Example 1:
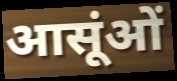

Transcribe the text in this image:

आसूंओं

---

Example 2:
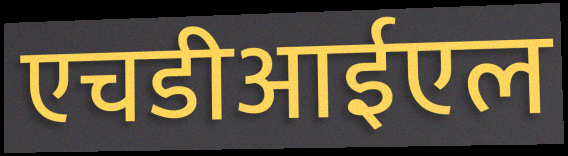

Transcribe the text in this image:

एचडीआईएल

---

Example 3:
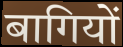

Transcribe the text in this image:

बागियों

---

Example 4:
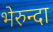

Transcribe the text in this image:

भेरुन्दा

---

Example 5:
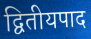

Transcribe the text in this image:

द्वितीयपाद